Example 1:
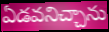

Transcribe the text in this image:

ఏడవనిచ్చాను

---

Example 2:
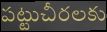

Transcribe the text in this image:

పట్టుచీరలకు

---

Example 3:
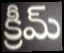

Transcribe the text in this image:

క్రీమ్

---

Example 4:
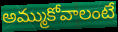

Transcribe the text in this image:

అమ్ముకోవాలంటే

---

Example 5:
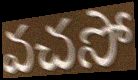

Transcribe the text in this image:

వచసో